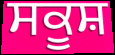
ਸਕੂਸ਼